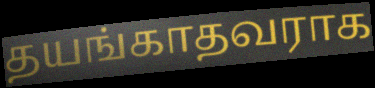
தயங்காதவராக